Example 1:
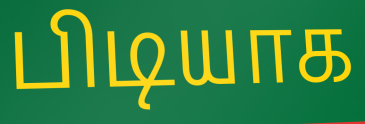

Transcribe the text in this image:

பிடியாக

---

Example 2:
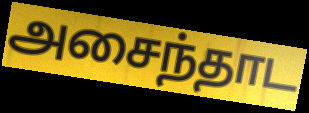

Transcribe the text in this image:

அசைந்தாட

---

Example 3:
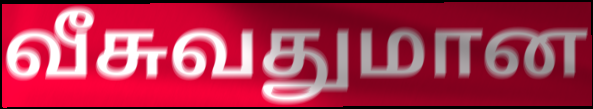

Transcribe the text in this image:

வீசுவதுமான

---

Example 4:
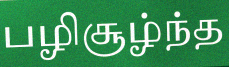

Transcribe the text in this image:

பழிசூழ்ந்த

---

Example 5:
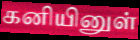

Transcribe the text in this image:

கனியினுள்